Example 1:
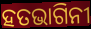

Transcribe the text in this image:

ହତଭାଗିନୀ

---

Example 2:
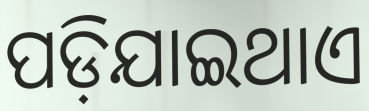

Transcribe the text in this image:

ପଡ଼ିଯାଇଥାଏ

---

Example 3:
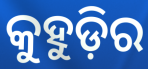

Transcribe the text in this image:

କୁହୁଡ଼ିର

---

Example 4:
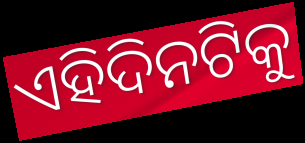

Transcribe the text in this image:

ଏହିଦିନଟିକୁ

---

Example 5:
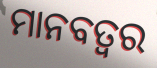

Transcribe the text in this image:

ମାନବତ୍ୱର